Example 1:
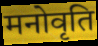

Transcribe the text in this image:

मनोवृति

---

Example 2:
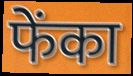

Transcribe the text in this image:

फेंका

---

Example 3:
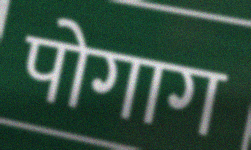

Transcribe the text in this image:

पोगाग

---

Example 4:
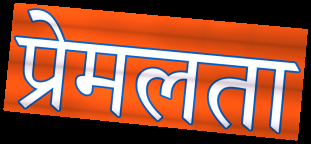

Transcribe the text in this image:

प्रेमलता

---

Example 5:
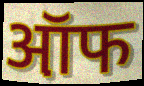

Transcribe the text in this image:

ऑ़फ